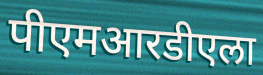
पीएमआरडीएला